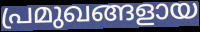
പ്രമുഖങ്ങളായ